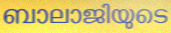
ബാലാജിയുടെ